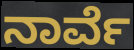
ನಾರ್ವೆ